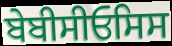
ਬੇਬੀਸੀਓਸਿਸ